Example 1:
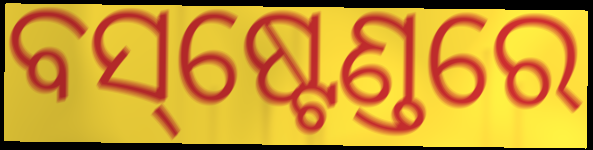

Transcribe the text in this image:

ବସ୍‌ଷ୍ଟେଣ୍ଡରେ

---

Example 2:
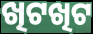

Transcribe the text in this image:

ଖିଟଖିଟ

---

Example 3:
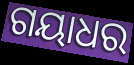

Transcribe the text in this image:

ଗୟାଧର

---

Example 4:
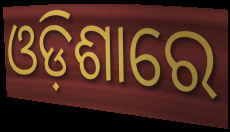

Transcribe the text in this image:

ଓଡ଼ିଶାରେ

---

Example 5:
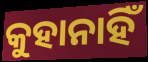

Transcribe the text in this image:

କୁହାନାହିଁ